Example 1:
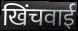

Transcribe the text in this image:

खिंचवाई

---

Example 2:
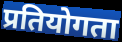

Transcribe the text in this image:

प्रतियोगता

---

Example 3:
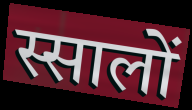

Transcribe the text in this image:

स्सालों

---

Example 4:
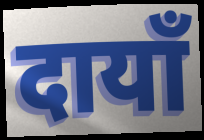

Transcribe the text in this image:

दायाँ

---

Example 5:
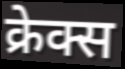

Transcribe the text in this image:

क्रेक्स